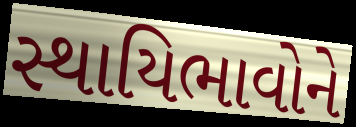
સ્થાયિભાવોને